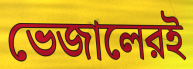
ভেজালেরই